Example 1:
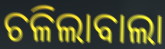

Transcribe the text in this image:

ଚଳିଲାବାଲା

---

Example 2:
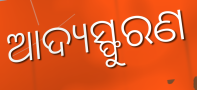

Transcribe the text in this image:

ଆଦ୍ୟସ୍ଫୁରଣ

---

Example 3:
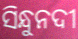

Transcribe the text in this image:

ସିନ୍ଧୁନଦୀ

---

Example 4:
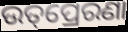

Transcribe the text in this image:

ଉତ୍‌ପ୍ରେରଣା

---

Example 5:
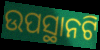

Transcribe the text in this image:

ଉପସ୍ଥାନଟି